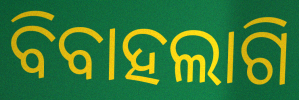
ବିବାହଲାଗି